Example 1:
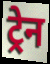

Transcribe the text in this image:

ट्र्रेन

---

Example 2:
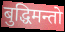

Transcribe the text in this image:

बुद्धिमन्तो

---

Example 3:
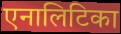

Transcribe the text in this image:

एनालिटिका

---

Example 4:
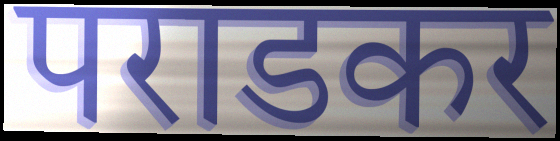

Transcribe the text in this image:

पराडकर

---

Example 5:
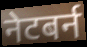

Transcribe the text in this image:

नेटबर्न